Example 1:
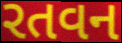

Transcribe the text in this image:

રતવન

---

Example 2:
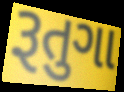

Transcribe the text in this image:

રૂતુગા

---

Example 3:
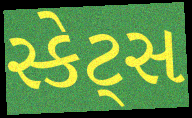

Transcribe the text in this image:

સ્કેટ્સ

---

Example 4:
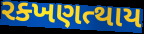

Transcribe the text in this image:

રક્ખણત્થાય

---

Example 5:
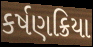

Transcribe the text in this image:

કર્ષણક્રિયા